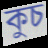
কুচ